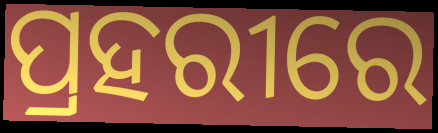
ପ୍ରହରୀରେ